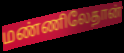
மண்ணிலேதான்